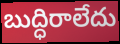
బుద్ధిరాలేదు